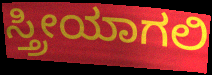
ಸ್ತ್ರೀಯಾಗಲಿ